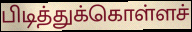
பிடித்துக்கொள்ளச்